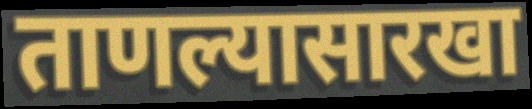
ताणल्यासारखा